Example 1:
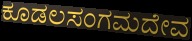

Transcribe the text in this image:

ಕೂಡಲಸಂಗಮದೇವ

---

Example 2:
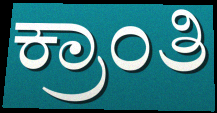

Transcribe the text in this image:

ಕ್ರಾಂತಿ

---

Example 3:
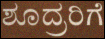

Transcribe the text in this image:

ಶೂದ್ರರಿಗೆ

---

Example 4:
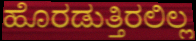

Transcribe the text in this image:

ಹೊರಡುತ್ತಿರಲಿಲ್ಲ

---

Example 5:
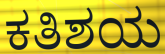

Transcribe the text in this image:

ಕತಿಶಯ